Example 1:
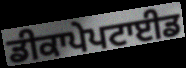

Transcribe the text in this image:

ਡੀਕਾਪੇਪਟਾਈਡ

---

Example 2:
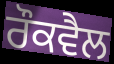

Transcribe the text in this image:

ਰੌਕਵੈਲ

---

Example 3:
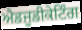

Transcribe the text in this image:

ਐਡਜੂਡੀਕੇਟਿੰਗ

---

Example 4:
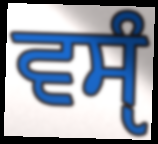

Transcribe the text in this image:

ਵਸੵੰ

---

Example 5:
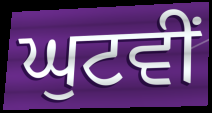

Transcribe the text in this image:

ਘੁਟਵੀਂ